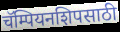
चॅम्पियनशिपसाठी